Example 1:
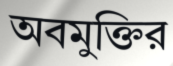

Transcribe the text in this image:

অবমুক্তির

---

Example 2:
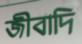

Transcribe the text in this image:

জীবাদি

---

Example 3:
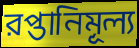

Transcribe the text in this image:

রপ্তানিমূল্য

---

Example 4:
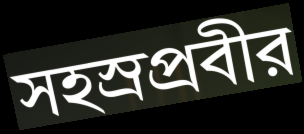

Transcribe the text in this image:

সহস্রপ্রবীর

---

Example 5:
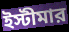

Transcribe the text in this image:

ইস্টীমার